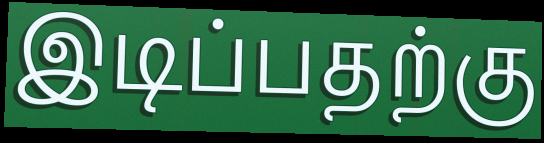
இடிப்பதற்கு